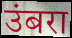
उंबरा